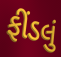
ફીંડલું